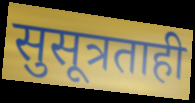
सुसूत्रताही